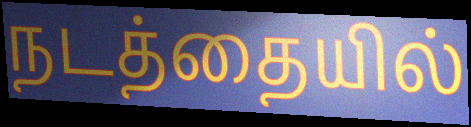
நடத்தையில்